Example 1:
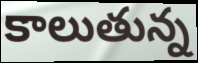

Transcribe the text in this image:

కాలుతున్న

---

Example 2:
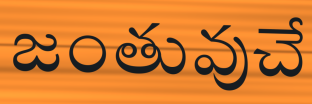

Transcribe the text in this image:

జంతువుచే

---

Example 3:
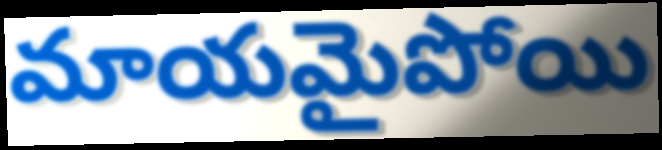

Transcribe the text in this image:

మాయమైపోయి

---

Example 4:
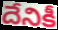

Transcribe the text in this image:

దేనికీ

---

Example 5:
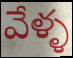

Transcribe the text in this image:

వేళ్ళ